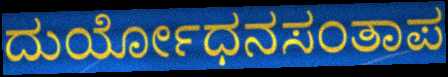
ದುರ್ಯೋಧನಸಂತಾಪ